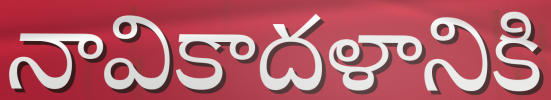
నావికాదళానికి